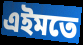
এইমতে